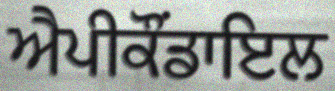
ਐਪੀਕੌਂਡਾਇਲ